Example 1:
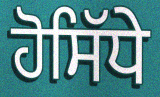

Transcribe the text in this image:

ਹੋਸਿੱਧੇ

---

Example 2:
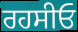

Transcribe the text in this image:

ਰਹਸੀਓ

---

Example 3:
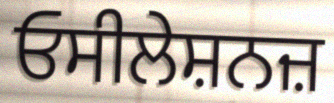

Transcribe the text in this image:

ਓਸੀਲੇਸ਼ਨਜ਼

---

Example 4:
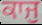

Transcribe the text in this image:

ਕਾਜੁ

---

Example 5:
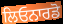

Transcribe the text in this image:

ਲਿਓਨਾਰਡੋ